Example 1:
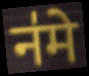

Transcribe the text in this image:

न॑मे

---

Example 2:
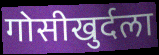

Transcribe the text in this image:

गोसीखुर्दला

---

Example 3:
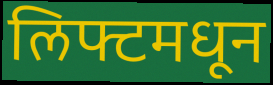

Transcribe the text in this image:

लिफ्टमधून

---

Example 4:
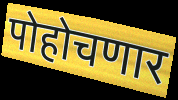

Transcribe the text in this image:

पोहोचणार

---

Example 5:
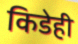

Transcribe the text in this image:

किडेही